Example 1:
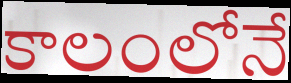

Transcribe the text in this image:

కాలంలోనే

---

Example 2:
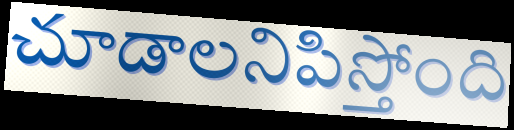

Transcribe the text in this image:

చూడాలనిపిస్తోంది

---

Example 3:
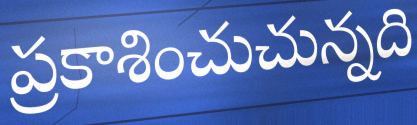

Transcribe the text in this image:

ప్రకాశించుచున్నది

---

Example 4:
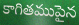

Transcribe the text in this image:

కాగితముపైన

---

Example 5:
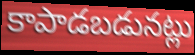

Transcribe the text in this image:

కాపాడబడునట్లు